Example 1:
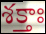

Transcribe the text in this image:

శక్తాః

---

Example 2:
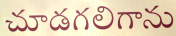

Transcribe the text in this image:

చూడగలిగాను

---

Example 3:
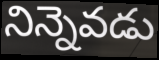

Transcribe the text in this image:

నిన్నెవడు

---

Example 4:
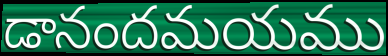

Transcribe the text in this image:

డానందమయము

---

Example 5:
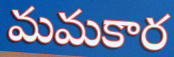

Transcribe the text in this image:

మమకార